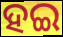
ହଇ